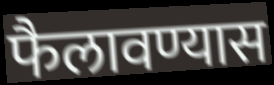
फैलावण्यास